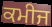
ਕਮੀਜ